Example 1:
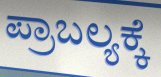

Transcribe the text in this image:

ಪ್ರಾಬಲ್ಯಕ್ಕೆ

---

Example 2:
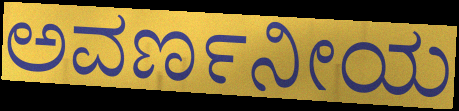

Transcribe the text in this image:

ಅವರ್ಣನೀಯ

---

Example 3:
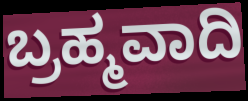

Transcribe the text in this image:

ಬ್ರಹ್ಮವಾದಿ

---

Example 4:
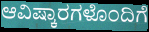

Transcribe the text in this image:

ಆವಿಷ್ಕಾರಗಳೊಂದಿಗೆ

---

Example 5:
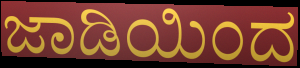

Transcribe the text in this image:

ಜಾಡಿಯಿಂದ